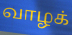
வாழக்